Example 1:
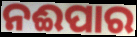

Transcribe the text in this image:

ନଈପାର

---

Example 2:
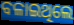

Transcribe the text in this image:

ବଳାଇଥିଲେ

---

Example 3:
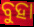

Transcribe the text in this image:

ବୁହା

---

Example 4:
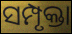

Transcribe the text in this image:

ସମ୍ପୃକ୍ତା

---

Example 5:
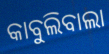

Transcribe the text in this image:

କାବୁଲିବାଲା